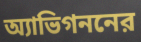
অ্যাভিগননের